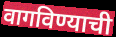
वागविण्याची